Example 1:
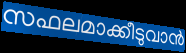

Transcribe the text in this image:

സഫലമാക്കീടുവാൻ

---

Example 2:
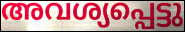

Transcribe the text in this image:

അവശ്യപ്പെട്ടു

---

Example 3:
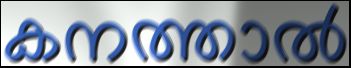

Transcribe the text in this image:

കനത്താൽ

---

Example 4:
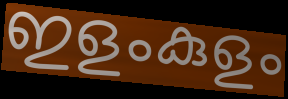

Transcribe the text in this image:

ഇളംകുളം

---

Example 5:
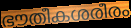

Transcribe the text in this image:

ഭൗതീകശരീരം